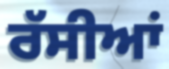
ਰੱਸੀਆਂ